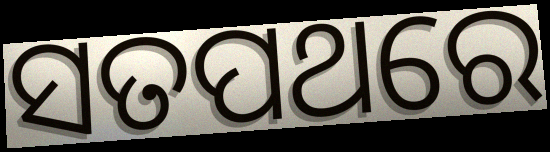
ସତପଥରେ